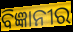
ବିଜ୍ଞାନୀର